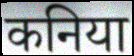
कनिया